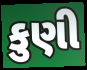
કુણી